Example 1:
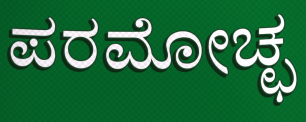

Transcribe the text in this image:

ಪರಮೋಚ್ಛ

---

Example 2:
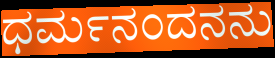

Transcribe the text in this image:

ಧರ್ಮನಂದನನು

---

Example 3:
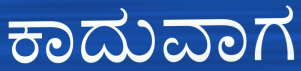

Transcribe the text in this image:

ಕಾದುವಾಗ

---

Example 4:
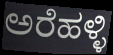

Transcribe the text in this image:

ಅರೆಹಳ್ಳಿ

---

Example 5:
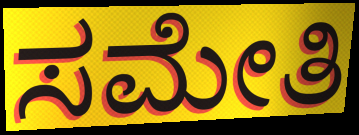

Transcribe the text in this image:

ಸಮೇತಿ